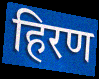
हिरण